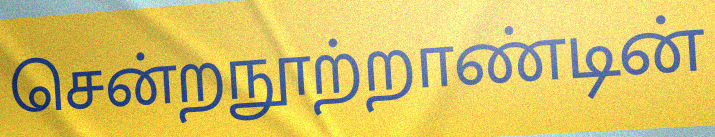
சென்றநூற்றாண்டின்